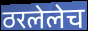
ठरलेलेच